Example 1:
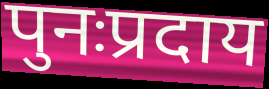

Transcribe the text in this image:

पुनःप्रदाय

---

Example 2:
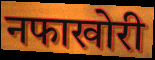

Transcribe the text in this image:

नफाखोरी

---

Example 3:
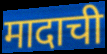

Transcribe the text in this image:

मादाची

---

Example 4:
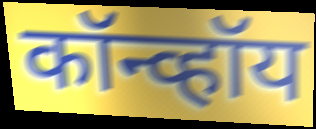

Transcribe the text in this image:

कॉन्व्हॉय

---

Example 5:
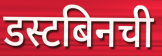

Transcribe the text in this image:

डस्टबिनची